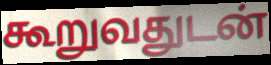
கூறுவதுடன்